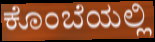
ಕೊಂಬೆಯಲ್ಲಿ